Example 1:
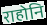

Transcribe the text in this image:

राहोनि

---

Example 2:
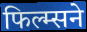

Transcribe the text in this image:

फिल्म्सने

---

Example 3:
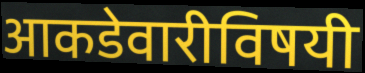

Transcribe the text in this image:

आकडेवारीविषयी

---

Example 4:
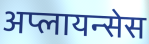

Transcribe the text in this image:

अप्लायन्सेस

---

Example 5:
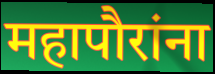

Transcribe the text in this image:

महापौरांना